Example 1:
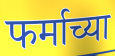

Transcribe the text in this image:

फर्माच्या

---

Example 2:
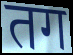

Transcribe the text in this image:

तग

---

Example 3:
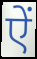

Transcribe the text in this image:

ऐं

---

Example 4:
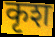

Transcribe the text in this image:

कृश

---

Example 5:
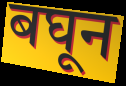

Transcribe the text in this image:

बघून